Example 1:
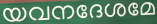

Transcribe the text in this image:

യവനദേശമേ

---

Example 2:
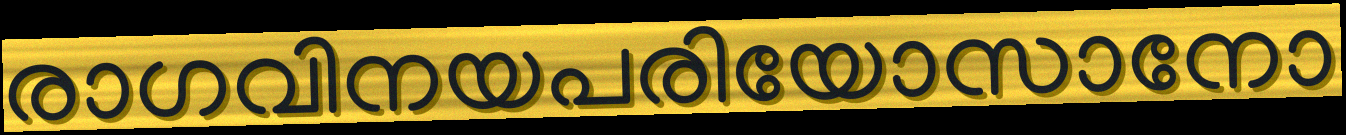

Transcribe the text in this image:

രാഗവിനയപരിയോസാനോ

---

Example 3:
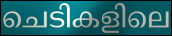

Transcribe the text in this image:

ചെടികളിലെ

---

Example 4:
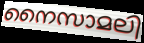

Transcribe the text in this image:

നൈസാമലി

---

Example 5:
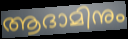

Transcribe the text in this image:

ആദാമിനും